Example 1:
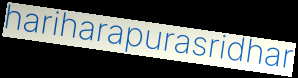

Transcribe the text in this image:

hariharapurasridhar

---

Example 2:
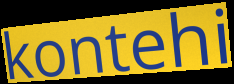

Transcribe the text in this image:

kontehi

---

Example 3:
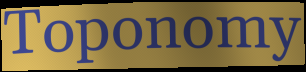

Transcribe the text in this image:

Toponomy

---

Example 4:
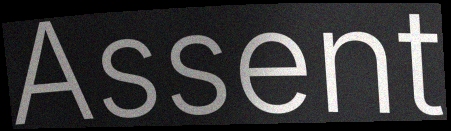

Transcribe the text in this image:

Assent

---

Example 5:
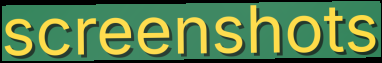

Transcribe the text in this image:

screenshots